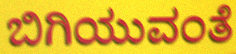
ಬಿಗಿಯುವಂತೆ